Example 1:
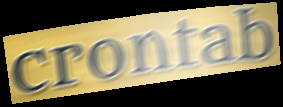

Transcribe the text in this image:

crontab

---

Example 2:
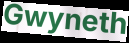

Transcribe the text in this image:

Gwyneth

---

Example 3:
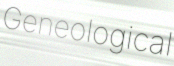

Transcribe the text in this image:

Geneological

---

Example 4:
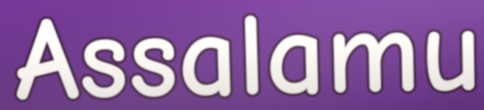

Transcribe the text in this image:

Assalamu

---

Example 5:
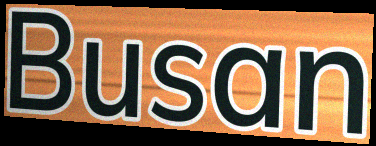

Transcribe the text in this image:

Busan